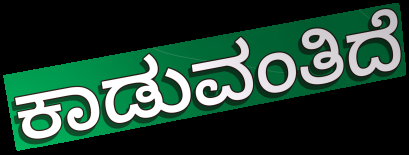
ಕಾಡುವಂತಿದೆ